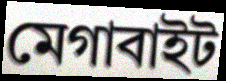
মেগাবাইট